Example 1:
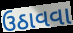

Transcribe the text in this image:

ઉઠાવવા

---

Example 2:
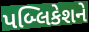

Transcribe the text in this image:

પબ્લિકેશને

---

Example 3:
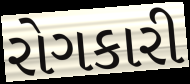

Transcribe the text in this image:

રોગકારી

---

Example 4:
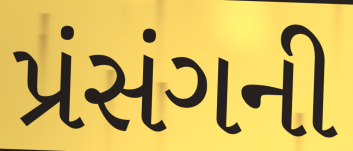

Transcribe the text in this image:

પ્રંસંગની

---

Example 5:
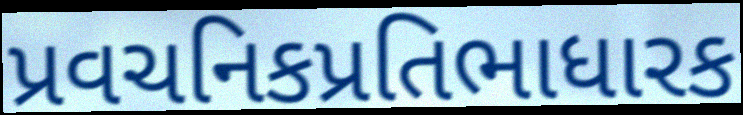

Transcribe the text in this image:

પ્રવચનિકપ્રતિભાધારક